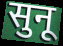
सुनू